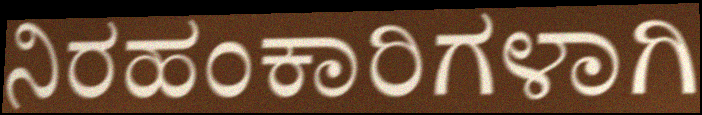
ನಿರಹಂಕಾರಿಗಳಾಗಿ